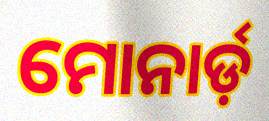
ମୋନାର୍ଡ଼